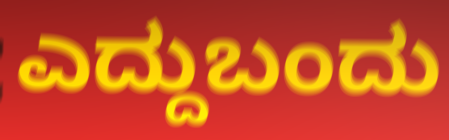
ಎದ್ದುಬಂದು